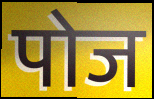
पोज